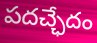
పదచ్ఛేదం